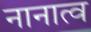
नानात्व